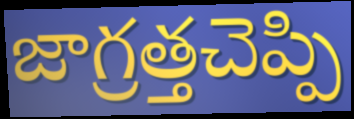
జాగ్రత్తచెప్పి